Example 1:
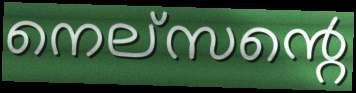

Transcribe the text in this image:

നെല്സന്റെ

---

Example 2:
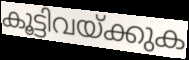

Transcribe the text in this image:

കൂട്ടിവയ്ക്കുക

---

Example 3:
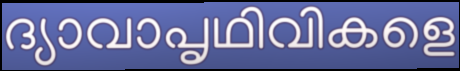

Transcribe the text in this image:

ദ്യാവാപൃഥിവികളെ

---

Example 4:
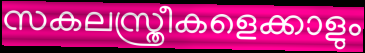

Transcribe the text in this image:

സകലസ്ത്രീകളെക്കാളും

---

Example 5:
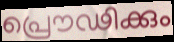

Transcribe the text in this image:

പ്രൌഢിക്കും